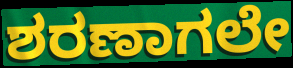
ಶರಣಾಗಲೇ